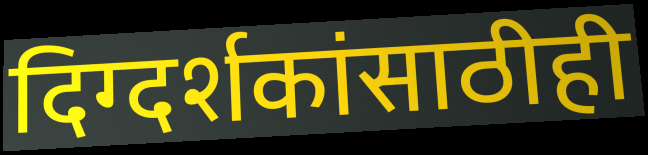
दिग्दर्शकांसाठीही